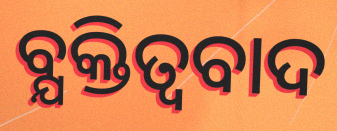
ବ୍ଯକ୍ତିତ୍ଵବାଦ